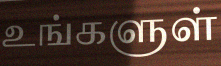
உங்களுள்